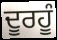
ਦੂਰਹੂੰ